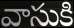
వాసుకి